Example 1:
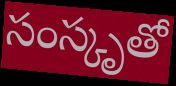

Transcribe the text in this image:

సంస్కృతో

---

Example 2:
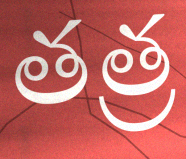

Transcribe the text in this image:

తత్ర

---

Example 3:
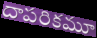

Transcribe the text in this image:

దాపరికమూ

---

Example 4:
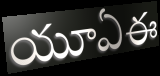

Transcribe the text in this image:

యూఏఈ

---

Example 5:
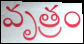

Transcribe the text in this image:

వృత్రం